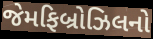
જેમફિબ્રોઝિલનો